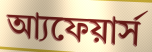
আ্যফেয়ার্স